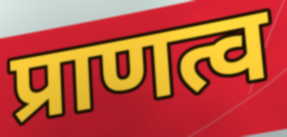
प्राणत्व